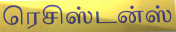
ரெசிஸ்டன்ஸ்